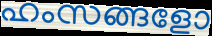
ഹംസങ്ങളോ